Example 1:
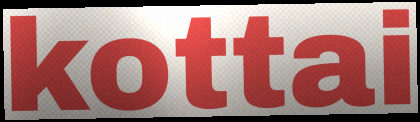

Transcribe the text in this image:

kottai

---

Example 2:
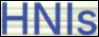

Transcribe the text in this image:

HNIs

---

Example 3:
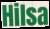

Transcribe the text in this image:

Hilsa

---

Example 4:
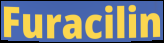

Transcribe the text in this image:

Furacilin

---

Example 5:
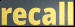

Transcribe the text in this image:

recall